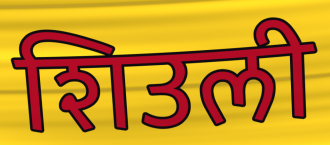
शिउली